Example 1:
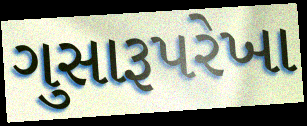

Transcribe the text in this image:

ગુસારૂપરેખા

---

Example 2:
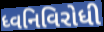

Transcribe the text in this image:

ધ્વનિવિરોધી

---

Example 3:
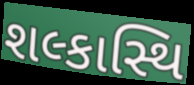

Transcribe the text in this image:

શલ્કાસ્થિ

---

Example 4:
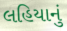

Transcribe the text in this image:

લહિયાનું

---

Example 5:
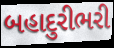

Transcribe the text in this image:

બહાદુરીભરી